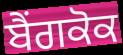
ਬੈਂਗਕੋਕ